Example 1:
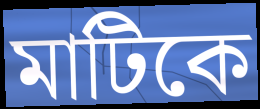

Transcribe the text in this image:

মাটিকে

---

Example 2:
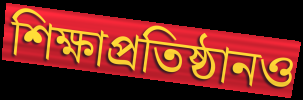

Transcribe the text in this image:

শিক্ষাপ্রতিষ্ঠানও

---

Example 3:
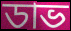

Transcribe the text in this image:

ডাভ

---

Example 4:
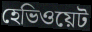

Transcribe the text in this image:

হেভিওয়েট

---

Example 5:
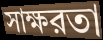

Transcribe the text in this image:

সাক্ষরতা